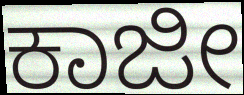
ಕಾಜೀ